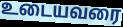
உடையவரை